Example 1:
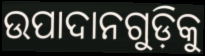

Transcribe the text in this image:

ଉପାଦାନଗୁଡ଼ିକୁ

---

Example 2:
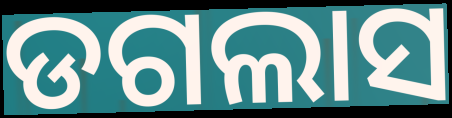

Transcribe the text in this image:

ଡଗଲାସ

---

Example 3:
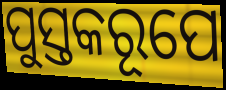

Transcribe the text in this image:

ପୁସ୍ତକରୂପେ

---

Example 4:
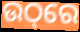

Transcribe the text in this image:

ଉଠ୍‌ରେ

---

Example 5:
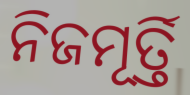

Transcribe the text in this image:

ନିଜମୂର୍ତ୍ତି